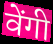
वेंगी